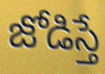
జోడిస్తే